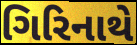
ગિરિનાથે